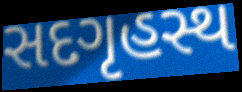
સદગૃહસ્થ